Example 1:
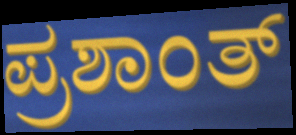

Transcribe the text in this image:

ಪ್ರಶಾಂತ್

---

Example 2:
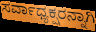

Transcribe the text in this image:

ಸರ್ವಾಧ್ಯಕ್ಷರನ್ನಾಗಿ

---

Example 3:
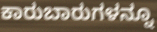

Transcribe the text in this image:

ಕಾರುಬಾರುಗಳನ್ನೂ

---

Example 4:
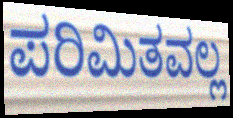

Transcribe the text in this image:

ಪರಿಮಿತವಲ್ಲ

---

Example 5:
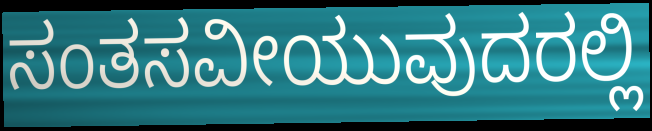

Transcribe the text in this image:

ಸಂತಸವೀಯುವುದರಲ್ಲಿ